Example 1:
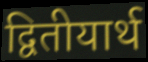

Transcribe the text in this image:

द्वितीयार्थ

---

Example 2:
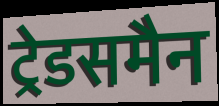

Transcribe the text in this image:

ट्रेडसमैन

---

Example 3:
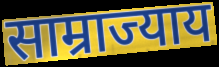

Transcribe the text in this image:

साम्राज्याय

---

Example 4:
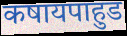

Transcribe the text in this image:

कषायपाहुड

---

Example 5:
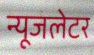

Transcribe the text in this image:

न्यूजलेटर